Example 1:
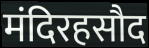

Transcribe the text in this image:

मंदिरहसौद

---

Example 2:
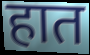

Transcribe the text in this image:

हात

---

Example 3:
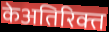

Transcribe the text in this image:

केअतिरिक्त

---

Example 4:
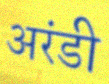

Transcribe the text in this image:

अरंडी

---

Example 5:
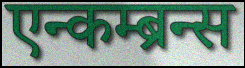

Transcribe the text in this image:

एन्कम्ब्रन्स